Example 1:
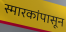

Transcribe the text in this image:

स्मारकांपासून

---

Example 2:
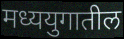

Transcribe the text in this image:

मध्ययुगातील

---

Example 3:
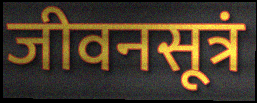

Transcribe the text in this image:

जीवनसूत्रं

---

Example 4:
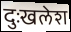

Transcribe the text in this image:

दुःखलेश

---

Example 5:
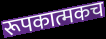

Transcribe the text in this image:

रूपकात्मकच